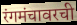
रंगमंचावरची